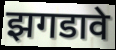
झगडावे